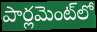
పార్లమెంట్‌లో